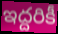
ఇద్దరికీ